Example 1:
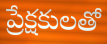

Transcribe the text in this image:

ప్రేక్షకులతో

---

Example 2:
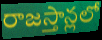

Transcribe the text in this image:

రాజస్తాన్లలో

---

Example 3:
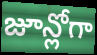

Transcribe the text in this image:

జూన్లోగా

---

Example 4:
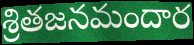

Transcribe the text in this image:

శ్రితజనమందార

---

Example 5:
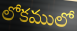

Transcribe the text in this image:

లోకములో